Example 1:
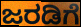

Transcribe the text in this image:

ಜರಡಿಗೆ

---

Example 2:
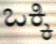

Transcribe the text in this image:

ಒಕ್ಕಿ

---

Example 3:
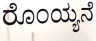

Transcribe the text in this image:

ರೊಂಯ್ಯನೆ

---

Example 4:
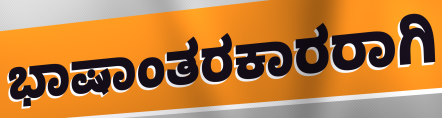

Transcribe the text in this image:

ಭಾಷಾಂತರಕಾರರಾಗಿ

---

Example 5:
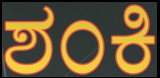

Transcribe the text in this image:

ಶಂಕಿ